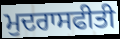
ਮੁਦਰਾਸਫੀਤੀ